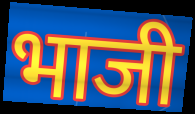
भाजी